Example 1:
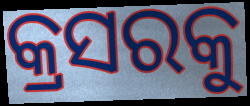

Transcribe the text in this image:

କ୍ରସରକୁ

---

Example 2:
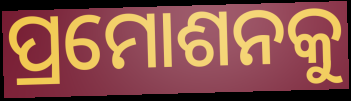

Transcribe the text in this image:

ପ୍ରମୋଶନକୁ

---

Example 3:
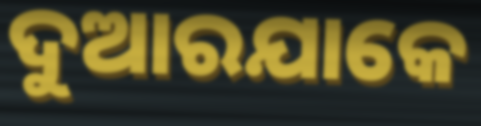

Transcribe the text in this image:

ଦୁଆରଯାକେ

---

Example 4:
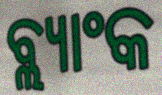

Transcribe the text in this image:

ବ୍ଲ୍ଯାଂକ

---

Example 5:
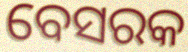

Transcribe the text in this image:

ବେସରକ